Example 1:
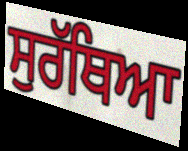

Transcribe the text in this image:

ਸੁਰੱਥਿਆ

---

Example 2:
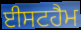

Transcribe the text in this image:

ਈਸਟਹੈਮ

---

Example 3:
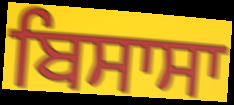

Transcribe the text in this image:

ਬਿਸਾਸਾ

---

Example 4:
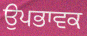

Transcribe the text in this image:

ਉਪਭਾਵਕ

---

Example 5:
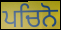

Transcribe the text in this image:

ਪਚਿਨੋ